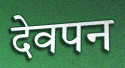
देवपन